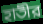
হাতীর